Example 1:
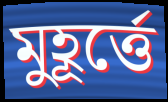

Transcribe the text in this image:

মুহূর্ত্তে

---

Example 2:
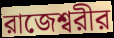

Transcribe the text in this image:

রাজেশ্বরীর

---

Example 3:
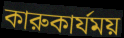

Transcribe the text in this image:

কারুকার্যময়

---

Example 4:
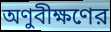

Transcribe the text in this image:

অণুবীক্ষণের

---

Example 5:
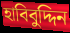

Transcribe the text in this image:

হাবিবুদ্দিন